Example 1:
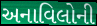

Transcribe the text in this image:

અનાવિલોની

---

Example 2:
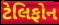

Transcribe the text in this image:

ટેલિફોન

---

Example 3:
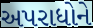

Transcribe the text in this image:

અપરાધોને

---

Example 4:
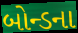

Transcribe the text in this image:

બોન્ડના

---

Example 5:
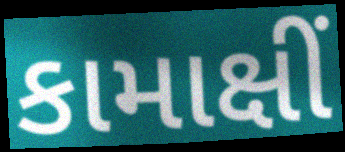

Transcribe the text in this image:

કામાક્ષીં